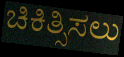
ಚಿಕಿತ್ಸಿಸಲು